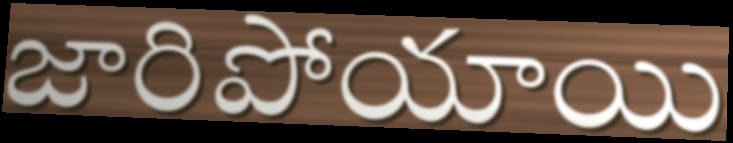
జారిపోయాయి